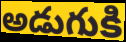
అడుగుకి